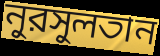
নুরসুলতান